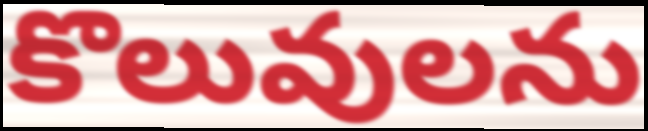
కొలువులను